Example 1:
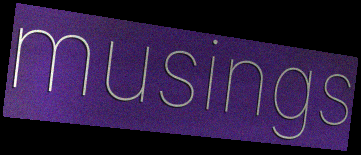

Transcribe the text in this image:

musings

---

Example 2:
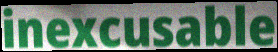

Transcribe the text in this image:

inexcusable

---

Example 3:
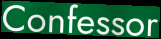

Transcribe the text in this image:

Confessor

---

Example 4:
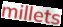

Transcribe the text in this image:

millets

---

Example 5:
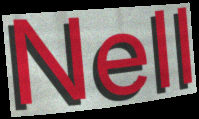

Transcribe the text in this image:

Nell